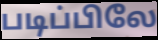
படிப்பிலே